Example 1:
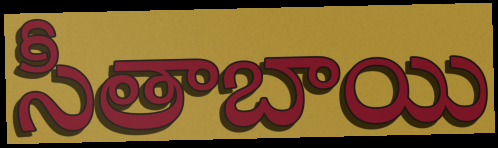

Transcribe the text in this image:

సీతాబాయి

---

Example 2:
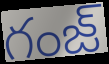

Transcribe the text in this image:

గంజ్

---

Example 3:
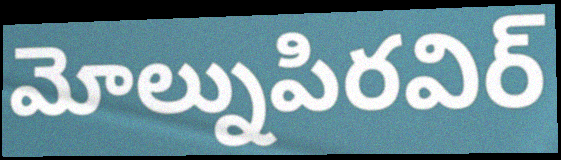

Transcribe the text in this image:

మోల్నుపిరవిర్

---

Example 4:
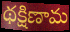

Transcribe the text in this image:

థక్షిణామ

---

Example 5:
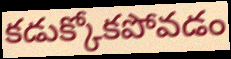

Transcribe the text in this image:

కడుక్కోకపోవడం